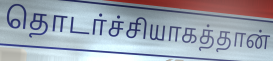
தொடர்ச்சியாகத்தான்